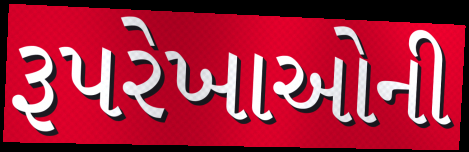
રૂપરેખાઓની